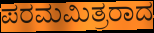
ಪರಮಮಿತ್ರರಾದ